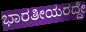
ಭಾರತೀಯರದ್ದೇ